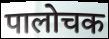
पालोचक